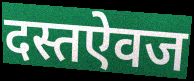
दस्तऐवज